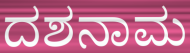
ದಶನಾಮ